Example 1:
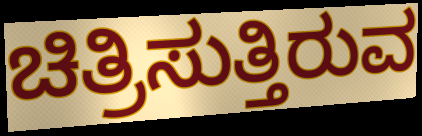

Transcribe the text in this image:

ಚಿತ್ರಿಸುತ್ತಿರುವ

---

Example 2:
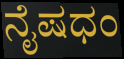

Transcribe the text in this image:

ನೈಷಧಂ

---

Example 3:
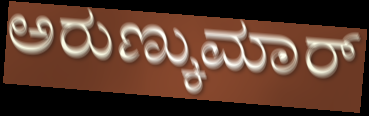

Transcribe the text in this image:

ಅರುಣ್ಕುಮಾರ್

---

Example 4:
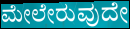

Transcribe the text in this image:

ಮೇಲೇರುವುದೇ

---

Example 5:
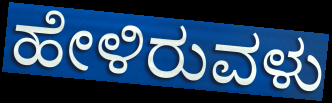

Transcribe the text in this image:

ಹೇಳಿರುವಳು